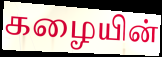
கழையின்